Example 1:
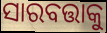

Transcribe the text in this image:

ସାରବତ୍ତାକୁ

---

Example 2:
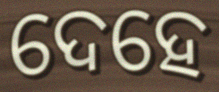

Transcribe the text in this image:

ଦେହେ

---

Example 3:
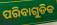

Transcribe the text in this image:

ପରିବାଗୁଡିକ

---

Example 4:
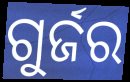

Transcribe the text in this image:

ଗୁର୍ଜର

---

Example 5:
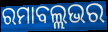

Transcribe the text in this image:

ରମାବଲ୍ଲଭର